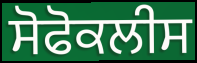
ਸੋਫੋਕਲੀਸ